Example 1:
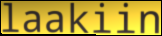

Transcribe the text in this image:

laakiin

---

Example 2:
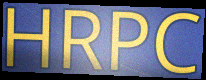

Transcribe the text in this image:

HRPC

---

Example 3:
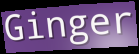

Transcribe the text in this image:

Ginger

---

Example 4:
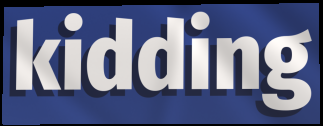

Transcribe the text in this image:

kidding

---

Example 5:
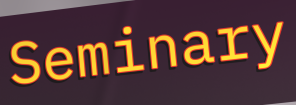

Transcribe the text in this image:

Seminary